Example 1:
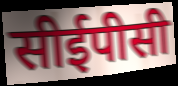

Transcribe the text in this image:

सीईपीसी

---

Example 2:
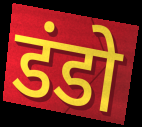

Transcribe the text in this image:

डंडो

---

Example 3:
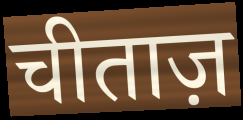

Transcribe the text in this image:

चीताज़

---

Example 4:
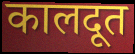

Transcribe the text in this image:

कालदूत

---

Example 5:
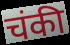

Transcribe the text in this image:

चंकी